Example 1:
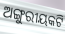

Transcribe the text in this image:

ଅଙ୍ଗୁରୀୟକଟି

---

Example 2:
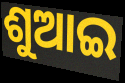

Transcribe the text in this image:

ଶୁଆଇ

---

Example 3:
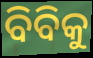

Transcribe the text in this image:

ବିବିକୁ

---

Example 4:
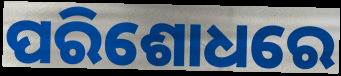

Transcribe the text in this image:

ପରିଶୋଧରେ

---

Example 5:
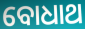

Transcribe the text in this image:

ବୋଧାଥ